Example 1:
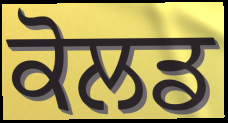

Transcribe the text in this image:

ਕੋਲਡ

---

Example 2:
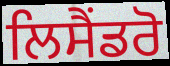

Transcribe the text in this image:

ਲਿਸੈਂਡਰੋ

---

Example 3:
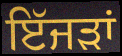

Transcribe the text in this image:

ਇੱਜੜਾਂ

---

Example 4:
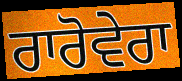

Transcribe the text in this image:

ਰਾਰੋਵੇਰਾ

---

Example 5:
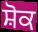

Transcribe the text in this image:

ਸ਼ੋਕ